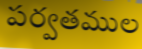
పర్వతముల